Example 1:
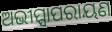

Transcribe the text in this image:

ଅଭୀପ୍ସାପରାୟଣ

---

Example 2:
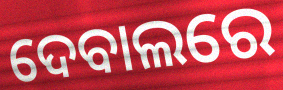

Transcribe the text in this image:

ଦେବାଲରେ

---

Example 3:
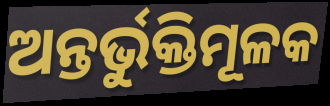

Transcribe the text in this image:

ଅନ୍ତର୍ଭୁକ୍ତିମୂଳକ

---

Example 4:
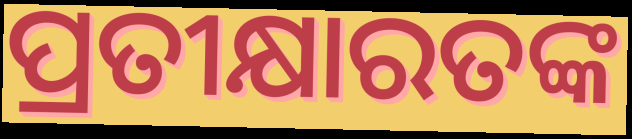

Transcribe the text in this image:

ପ୍ରତୀକ୍ଷାରତଙ୍କ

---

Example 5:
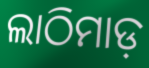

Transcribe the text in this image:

ଲାଠିମାଡ଼